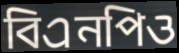
বিএনপিও